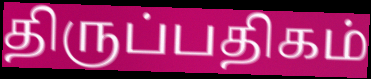
திருப்பதிகம்